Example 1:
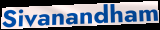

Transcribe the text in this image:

Sivanandham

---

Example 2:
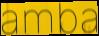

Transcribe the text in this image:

amba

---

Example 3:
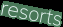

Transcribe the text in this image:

resorts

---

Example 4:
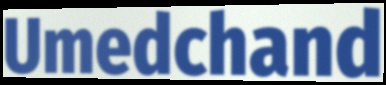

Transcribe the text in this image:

Umedchand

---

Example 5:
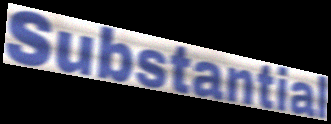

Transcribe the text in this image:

Substantial